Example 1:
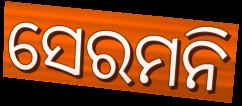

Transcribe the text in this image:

ସେରମନି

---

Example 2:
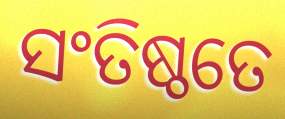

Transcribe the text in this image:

ସଂତିଷ୍ଠତେ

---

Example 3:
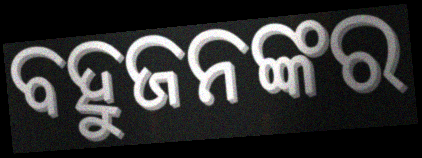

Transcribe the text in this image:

ବହୁଜନଙ୍କର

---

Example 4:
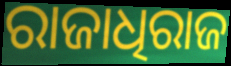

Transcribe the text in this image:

ରାଜାଧିରାଜ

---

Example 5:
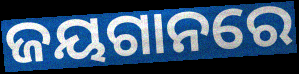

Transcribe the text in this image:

ଜୟଗାନରେ